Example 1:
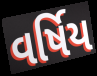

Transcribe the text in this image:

વર્ષિય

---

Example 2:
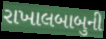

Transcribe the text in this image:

રાખાલબાબુની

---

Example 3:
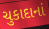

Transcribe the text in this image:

ચુકાદાનાં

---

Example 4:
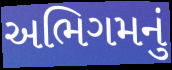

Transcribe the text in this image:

અભિગમનું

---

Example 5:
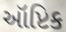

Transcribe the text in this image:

ઑપ્ટિક